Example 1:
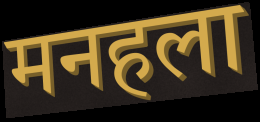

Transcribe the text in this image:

मनहला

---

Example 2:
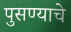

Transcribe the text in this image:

पुसण्याचे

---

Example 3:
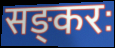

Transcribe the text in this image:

सङ्करः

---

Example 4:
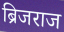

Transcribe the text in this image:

ब्रिजराज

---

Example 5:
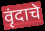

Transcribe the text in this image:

वृंदाचे